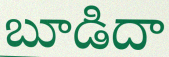
బూడిదా